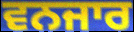
ਵਨਜਾਰ